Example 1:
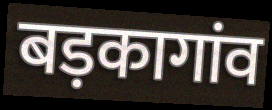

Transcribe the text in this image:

बड़कागांव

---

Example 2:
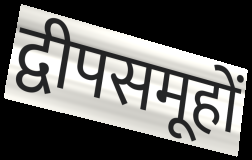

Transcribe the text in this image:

द्वीपसमूहों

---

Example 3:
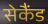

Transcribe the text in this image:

सेकैंड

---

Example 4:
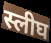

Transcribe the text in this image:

स्लीघ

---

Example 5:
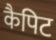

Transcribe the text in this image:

कैपिट